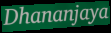
Dhananjaya